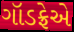
ગૉડફ્રેએ